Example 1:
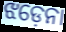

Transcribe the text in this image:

ଝଡ଼େନା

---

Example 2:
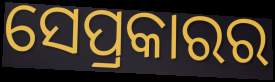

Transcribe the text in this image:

ସେପ୍ରକାରର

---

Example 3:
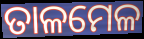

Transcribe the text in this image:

ତାଳମେଳ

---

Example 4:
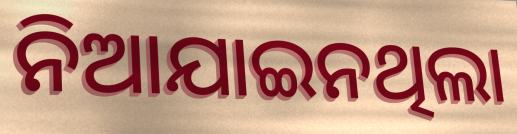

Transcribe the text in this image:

ନିଆଯାଇନଥିଲା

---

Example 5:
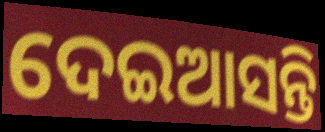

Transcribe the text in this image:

ଦେଇଆସନ୍ତି